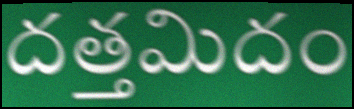
దత్తమిదం